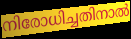
നിരോധിച്ചതിനാൽ